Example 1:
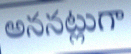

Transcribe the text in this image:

అననట్లుగా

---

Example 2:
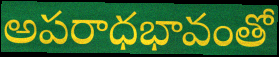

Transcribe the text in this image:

అపరాధభావంతో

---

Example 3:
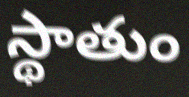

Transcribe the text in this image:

స్థాతుం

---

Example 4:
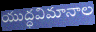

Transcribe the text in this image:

యుద్ధవిమానాల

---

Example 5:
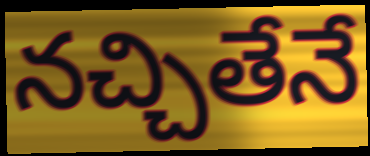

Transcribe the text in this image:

నచ్చితేనే